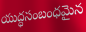
యుద్ధసంబంధమైన